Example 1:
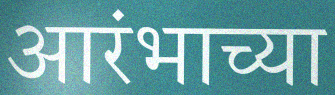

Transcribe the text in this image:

आरंभाच्या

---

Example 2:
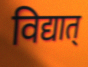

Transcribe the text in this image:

विद्यात्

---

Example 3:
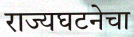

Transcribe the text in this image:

राज्यघटनेचा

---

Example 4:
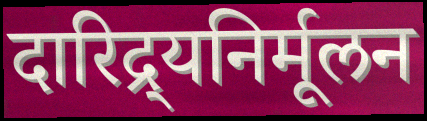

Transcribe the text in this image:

दारिद्र्यनिर्मूलन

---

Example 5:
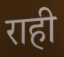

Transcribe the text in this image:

राही